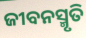
ଜୀବନସ୍ମୃତି